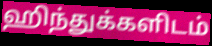
ஹிந்துக்களிடம்